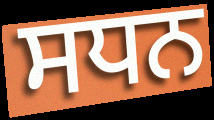
ਸਧਨ